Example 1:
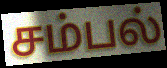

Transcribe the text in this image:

சம்பல்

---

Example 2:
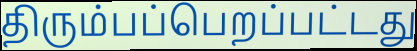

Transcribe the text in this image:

திரும்பப்பெறப்பட்டது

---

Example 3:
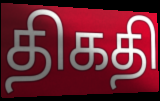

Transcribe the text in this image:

திகதி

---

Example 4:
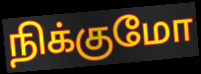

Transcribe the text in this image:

நிக்குமோ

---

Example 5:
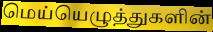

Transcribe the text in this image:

மெய்யெழுத்துகளின்